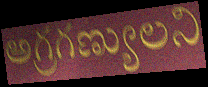
అగ్రగణ్యులని